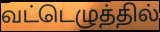
வட்டெழுத்தில்